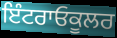
ਇੰਟਰਾਓਕੂਲਰ